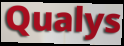
Qualys